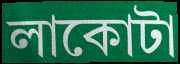
লাকোটা